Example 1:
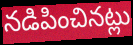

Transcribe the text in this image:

నడిపించినట్లు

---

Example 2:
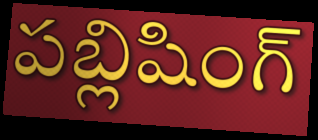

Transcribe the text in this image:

పబ్లిషింగ్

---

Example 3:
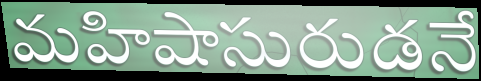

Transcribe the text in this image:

మహిషాసురుడనే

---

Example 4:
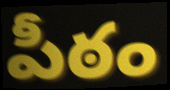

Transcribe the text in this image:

పీఠం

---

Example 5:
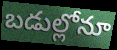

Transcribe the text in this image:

బడుల్లోనూ